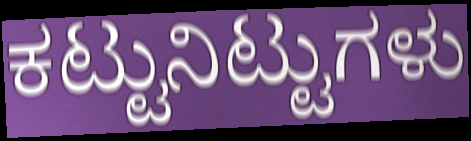
ಕಟ್ಟುನಿಟ್ಟುಗಳು